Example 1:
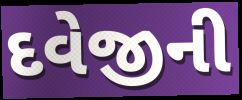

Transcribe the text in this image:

દવેજીની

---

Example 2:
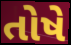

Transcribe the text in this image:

તોષે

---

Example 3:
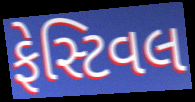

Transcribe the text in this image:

ફેસ્ટિવલ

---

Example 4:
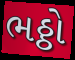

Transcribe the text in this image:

ભઠ્ઠો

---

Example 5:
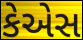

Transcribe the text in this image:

કેએસ